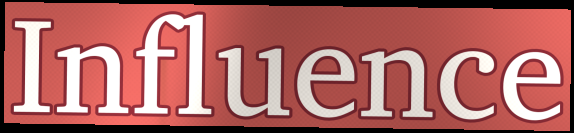
Influence